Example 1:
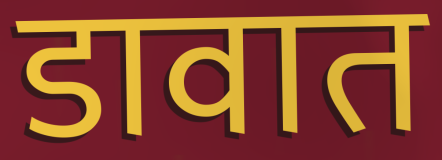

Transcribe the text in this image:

डावात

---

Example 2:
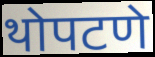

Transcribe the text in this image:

थोपटणे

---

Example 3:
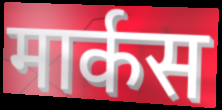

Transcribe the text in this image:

मार्कस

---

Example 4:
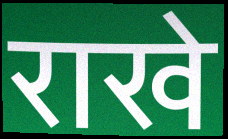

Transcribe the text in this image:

राखे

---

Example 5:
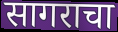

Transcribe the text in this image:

सागराचा